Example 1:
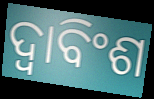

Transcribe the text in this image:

ଦ୍ୱାବିଂଶ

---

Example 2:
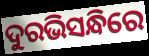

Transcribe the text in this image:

ଦୁରଭିସନ୍ଧିରେ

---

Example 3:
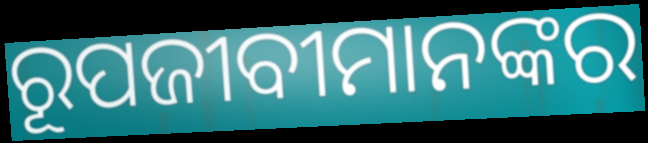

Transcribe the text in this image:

ରୂପଜୀବୀମାନଙ୍କର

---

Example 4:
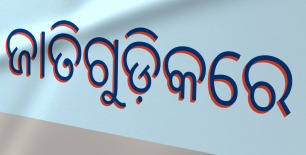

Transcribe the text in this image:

ଜାତିଗୁଡ଼ିକରେ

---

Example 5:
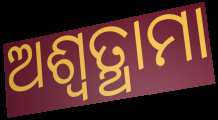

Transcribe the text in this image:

ଅଶ୍ଵତ୍ଥାମା